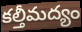
కల్తీమద్యం